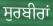
ਸੁਰਬੀਰਾਂ